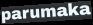
parumaka